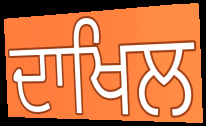
ਦਾਖਿਲ